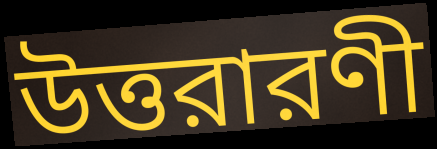
উত্তরারণী